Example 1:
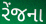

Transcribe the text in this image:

રેંજના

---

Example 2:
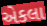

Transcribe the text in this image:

એકલા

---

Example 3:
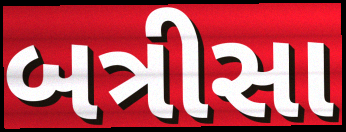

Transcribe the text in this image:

બત્રીસા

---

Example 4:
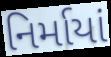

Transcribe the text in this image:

નિર્માયાં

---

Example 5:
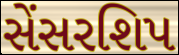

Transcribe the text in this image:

સેંસરશિપ